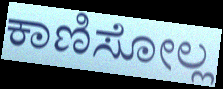
ಕಾಣಿಸೋಲ್ಲ